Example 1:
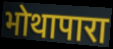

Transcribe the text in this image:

भोथापारा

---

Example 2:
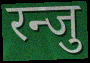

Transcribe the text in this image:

रन्जु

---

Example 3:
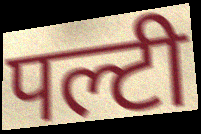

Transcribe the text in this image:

पल्टी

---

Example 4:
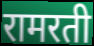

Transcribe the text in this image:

रामरती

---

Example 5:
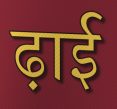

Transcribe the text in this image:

ढ़ाई